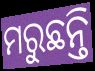
ମରୁଛନ୍ତି